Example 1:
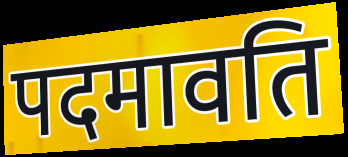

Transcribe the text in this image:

पदमावति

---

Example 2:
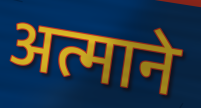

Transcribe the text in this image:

अत्माने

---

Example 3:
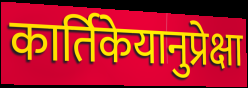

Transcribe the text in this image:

कार्तिकेयानुप्रेक्षा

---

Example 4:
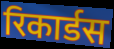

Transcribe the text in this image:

रिकार्डस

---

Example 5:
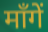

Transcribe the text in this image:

माँगें